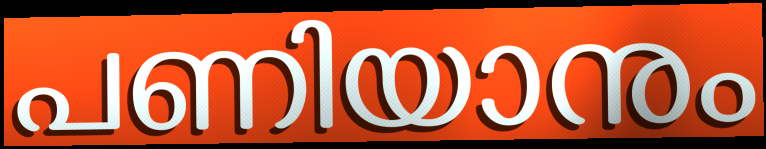
പണിയാനും